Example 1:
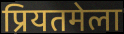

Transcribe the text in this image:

प्रियतमेला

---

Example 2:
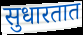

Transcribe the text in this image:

सुधारतात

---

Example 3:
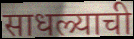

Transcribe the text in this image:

साधल्याची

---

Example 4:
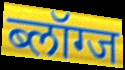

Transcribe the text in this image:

ब्लॉग्ज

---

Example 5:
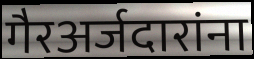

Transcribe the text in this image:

गैरअर्जदारांना